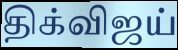
திக்விஜய்